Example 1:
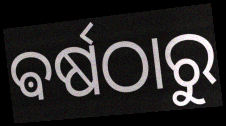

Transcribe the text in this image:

ଵର୍ଷଠାରୁ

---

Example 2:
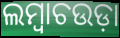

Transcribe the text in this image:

ଲମ୍ବାଚଉଡ଼ା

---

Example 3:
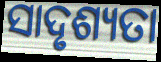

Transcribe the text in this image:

ସାଦୃଶ୍ୟତା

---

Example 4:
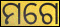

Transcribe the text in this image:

ମଗେ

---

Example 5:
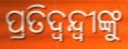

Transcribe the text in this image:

ପ୍ରତିଦ୍ବନ୍ଦ୍ବୀଙ୍କୁ